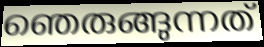
ഞെരുങ്ങുന്നത്